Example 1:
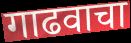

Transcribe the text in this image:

गाढवाचा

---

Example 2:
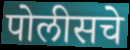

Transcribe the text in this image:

पोलीसचे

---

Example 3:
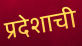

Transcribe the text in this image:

प्रदेशाची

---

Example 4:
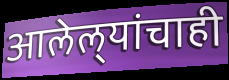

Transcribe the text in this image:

आलेल्यांचाही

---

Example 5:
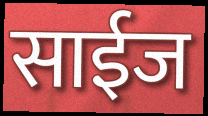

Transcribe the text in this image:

साईज